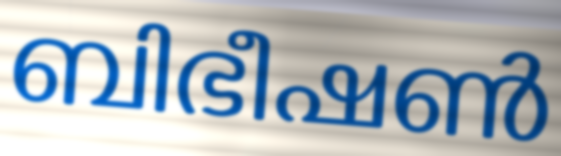
ബിഭീഷൺ